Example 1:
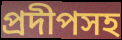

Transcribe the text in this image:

প্রদীপসহ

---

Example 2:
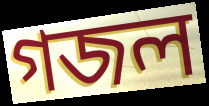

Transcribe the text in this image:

গজল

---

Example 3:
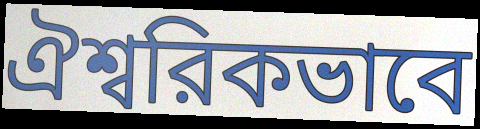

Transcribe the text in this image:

ঐশ্বরিকভাবে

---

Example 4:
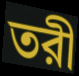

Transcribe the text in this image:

তরী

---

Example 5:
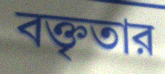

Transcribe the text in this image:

বক্তৃতার